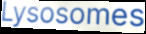
Lysosomes